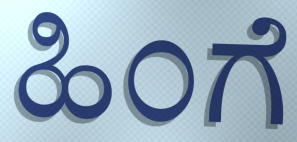
ಹಿಂಗೆ